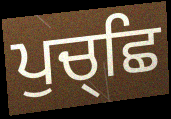
ਪੁਚ੍ਛਿ